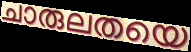
ചാരുലതയെ